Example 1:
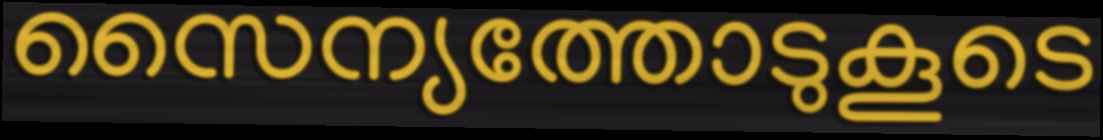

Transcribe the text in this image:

സൈന്യത്തോടുകൂടെ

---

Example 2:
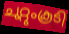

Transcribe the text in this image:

ചുറ്റുംകൂടി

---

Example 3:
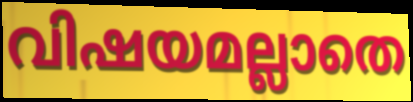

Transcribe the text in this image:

വിഷയമല്ലാതെ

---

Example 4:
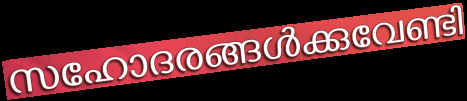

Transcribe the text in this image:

സഹോദരങ്ങൾക്കുവേണ്ടി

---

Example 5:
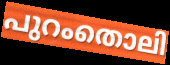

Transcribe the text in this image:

പുറംതൊലി